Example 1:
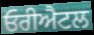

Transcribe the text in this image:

ਓਰੀਐਟਲ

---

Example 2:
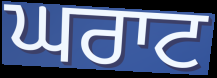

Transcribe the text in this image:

ਘਰਾਟ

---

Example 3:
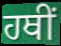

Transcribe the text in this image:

ਹਥੀਂ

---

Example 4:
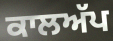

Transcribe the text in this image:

ਕਾਲਅੱਪ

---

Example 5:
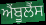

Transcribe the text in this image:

ਐੰਬੂਲੈੰਸ